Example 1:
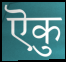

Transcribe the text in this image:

ऎकु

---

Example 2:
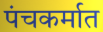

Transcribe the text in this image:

पंचकर्मात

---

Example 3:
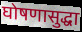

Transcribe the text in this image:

घोषणासुद्धा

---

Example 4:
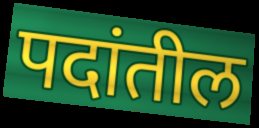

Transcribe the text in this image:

पदांतील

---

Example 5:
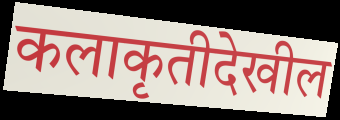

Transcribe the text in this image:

कलाकृतीदेखील